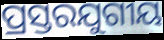
ପ୍ରସ୍ତରଯୁଗୀୟ